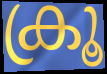
ക്രൂ